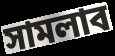
সামলাব